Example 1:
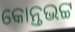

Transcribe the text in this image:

କୋନ୍ତଭଟ୍ଟ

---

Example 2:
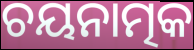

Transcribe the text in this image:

ଚୟନାତ୍ମକ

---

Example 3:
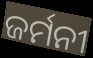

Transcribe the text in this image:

ଜର୍ମନୀ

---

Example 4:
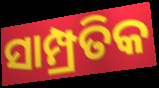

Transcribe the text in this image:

ସାମ୍ପ୍ରତିକ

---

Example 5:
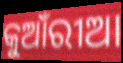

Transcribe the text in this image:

କୁଆଁରୀଆ